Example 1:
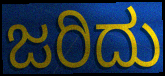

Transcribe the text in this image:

ಜರಿದು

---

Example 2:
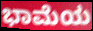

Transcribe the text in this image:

ಭಾಮೆಯ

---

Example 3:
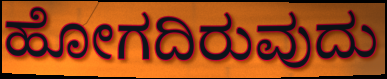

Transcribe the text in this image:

ಹೋಗದಿರುವುದು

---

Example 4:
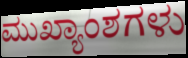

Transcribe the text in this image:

ಮುಖ್ಯಾಂಶಗಳು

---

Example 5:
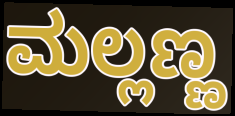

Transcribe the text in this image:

ಮಲ್ಲಣ್ಣ